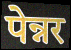
पेन्नर